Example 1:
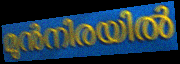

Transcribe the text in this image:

മുൻനിരയിൽ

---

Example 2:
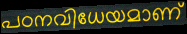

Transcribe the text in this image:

പഠനവിധേയമാണ്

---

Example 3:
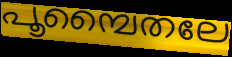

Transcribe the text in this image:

പൂമ്പൈതലേ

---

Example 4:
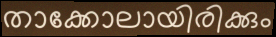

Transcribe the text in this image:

താക്കോലായിരിക്കും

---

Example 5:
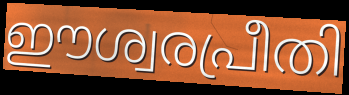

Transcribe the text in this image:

ഈശ്വരപ്രീതി